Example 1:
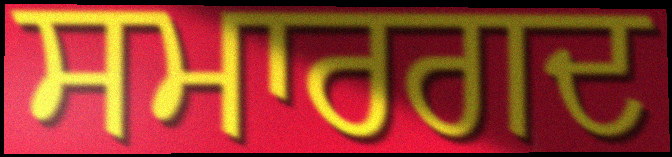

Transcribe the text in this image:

ਸਮਾਰਗਦ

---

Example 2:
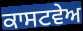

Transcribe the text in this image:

ਕਾਸਟਵੇਅ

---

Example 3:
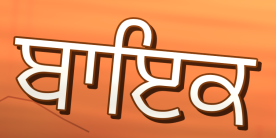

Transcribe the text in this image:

ਬਾਇਕ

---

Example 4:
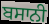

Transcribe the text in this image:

ਬਸਾਨੀ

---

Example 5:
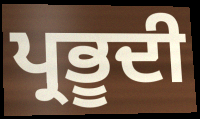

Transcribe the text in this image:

ਪ੍ਰਭੂਦੀ